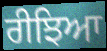
ਰੀਝਿਆ